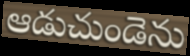
ఆడుచుండెను